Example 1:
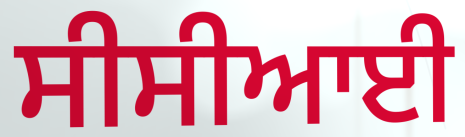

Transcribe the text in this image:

ਸੀਸੀਆਈ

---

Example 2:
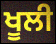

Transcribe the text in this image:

ਖੂਲੀ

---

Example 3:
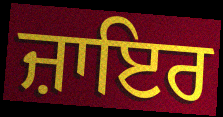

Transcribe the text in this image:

ਜ਼ਾਇਰ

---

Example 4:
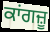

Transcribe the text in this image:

ਕਾਂਗਜ਼ੂ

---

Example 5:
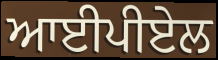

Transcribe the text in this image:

ਆਈਪੀਏਲ